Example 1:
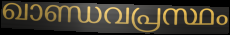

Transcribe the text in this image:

ഖാണ്ഡവപ്രസ്ഥം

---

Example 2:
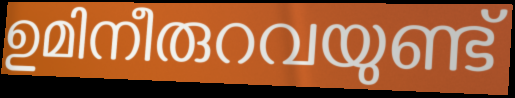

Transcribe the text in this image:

ഉമിനീരുറവയുണ്ട്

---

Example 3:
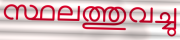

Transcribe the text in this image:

സ്ഥലത്തുവച്ചു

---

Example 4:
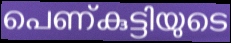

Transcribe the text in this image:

പെണ്കുട്ടിയുടെ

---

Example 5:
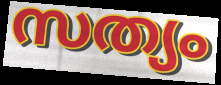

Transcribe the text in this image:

സത്യം